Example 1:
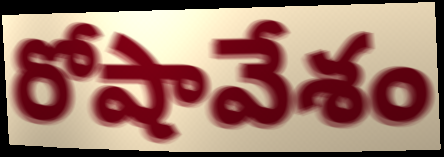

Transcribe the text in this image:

రోషావేశం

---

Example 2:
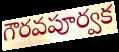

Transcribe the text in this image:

గౌరవపూర్వక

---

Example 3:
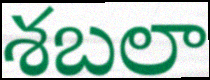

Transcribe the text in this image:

శబలా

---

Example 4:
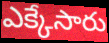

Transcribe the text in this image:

ఎక్కేసారు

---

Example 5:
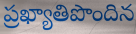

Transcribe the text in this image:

ప్రఖ్యాతిపొందిన